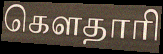
கௌதாரி